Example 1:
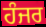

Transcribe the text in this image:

ਹੰਜਰ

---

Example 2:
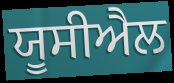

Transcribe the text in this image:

ਯੂਸੀਐਲ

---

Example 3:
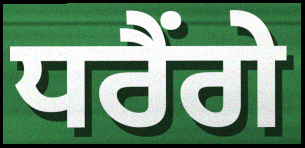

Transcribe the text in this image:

ਧਰੈਂਗੇ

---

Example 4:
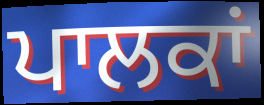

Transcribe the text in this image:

ਪਾਲਕਾਂ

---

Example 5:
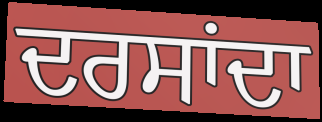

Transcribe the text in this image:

ਦਰਸਾਂਦਾ